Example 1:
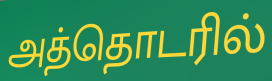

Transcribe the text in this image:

அத்தொடரில்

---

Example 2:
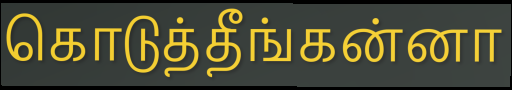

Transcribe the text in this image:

கொடுத்தீங்கன்னா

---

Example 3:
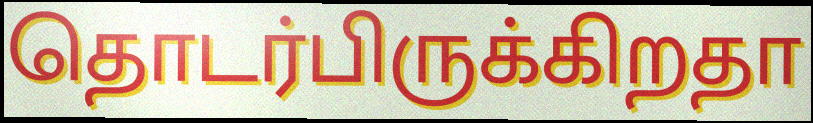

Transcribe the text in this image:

தொடர்பிருக்கிறதா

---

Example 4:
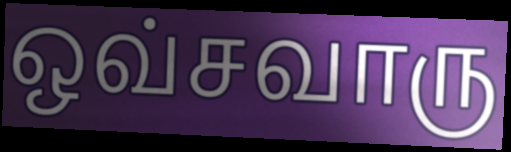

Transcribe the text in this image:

ஒவ்சவாரு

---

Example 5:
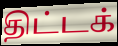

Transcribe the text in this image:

திட்டக்